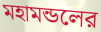
মহামন্ডলের